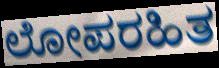
ಲೋಪರಹಿತ